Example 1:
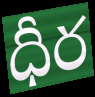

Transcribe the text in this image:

ధీర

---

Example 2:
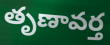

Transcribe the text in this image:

తృణావర్త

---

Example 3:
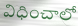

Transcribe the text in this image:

విధించాలో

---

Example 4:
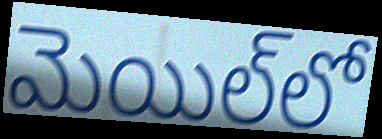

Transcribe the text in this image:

మెయిల్‌లో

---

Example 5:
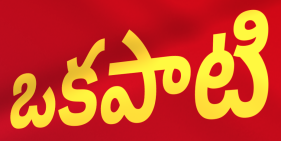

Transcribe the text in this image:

ఒకపాటి